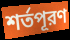
শর্তপূরণ